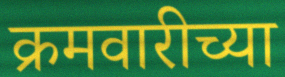
क्रमवारीच्या